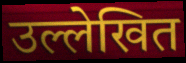
उल्लेखित